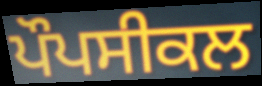
ਪੌਪਸੀਕਲ